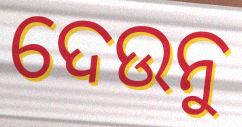
ଦେଉନୁ